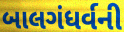
બાલગંધર્વની